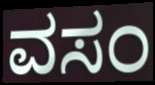
ವಸಂ